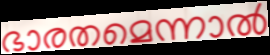
ഭാരതമെന്നാൽ